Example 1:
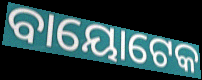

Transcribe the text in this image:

ବାୟୋଟେକ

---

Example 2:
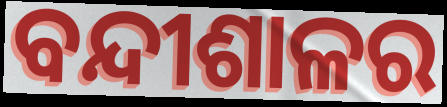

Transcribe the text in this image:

ବନ୍ଦୀଶାଳର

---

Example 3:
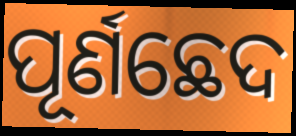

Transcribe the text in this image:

ପୂର୍ଣଛେଦ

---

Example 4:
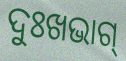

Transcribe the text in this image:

ଦୁଃଖଭାଗ୍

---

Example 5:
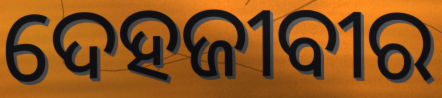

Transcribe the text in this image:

ଦେହଜୀବୀର